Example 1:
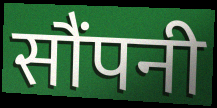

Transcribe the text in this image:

सौंपनी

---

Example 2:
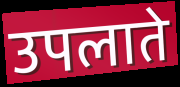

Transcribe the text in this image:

उपलाते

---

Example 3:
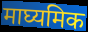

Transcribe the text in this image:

माघ्यमिक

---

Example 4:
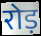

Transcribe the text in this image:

रोड़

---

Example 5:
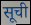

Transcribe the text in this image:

सूची